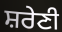
ਸ਼ਰੇਣੀ